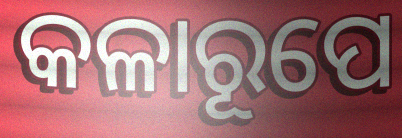
କଳାରୂପେ